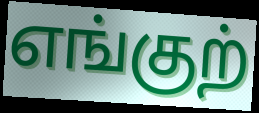
எங்குற்